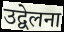
उद्वेलना